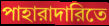
পাহারাদারিতে